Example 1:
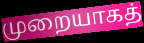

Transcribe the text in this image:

முறையாகத்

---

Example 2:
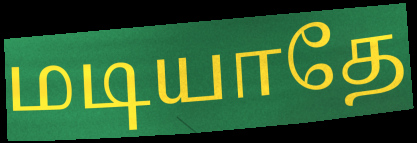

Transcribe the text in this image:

மடியாதே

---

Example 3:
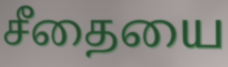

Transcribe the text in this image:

சீதையை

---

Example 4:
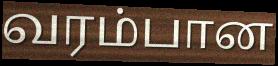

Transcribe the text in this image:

வரம்பான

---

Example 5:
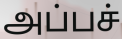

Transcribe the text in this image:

அப்பச்